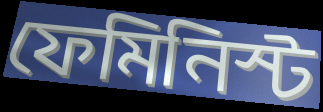
ফেমিনিস্ট